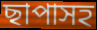
ছাপাসহ